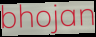
bhojan